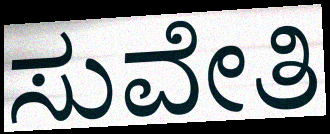
ಸುವೇತಿ